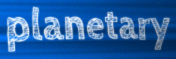
planetary